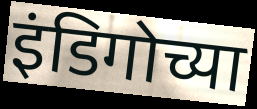
इंडिगोच्या